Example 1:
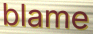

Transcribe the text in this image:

blame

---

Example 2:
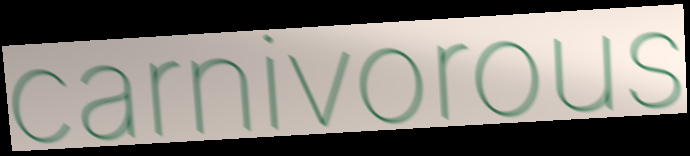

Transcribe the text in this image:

carnivorous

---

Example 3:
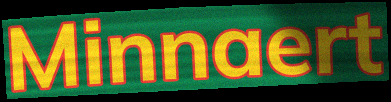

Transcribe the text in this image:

Minnaert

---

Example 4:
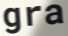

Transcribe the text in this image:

gra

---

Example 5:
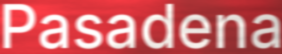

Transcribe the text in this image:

Pasadena